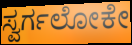
ಸ್ವರ್ಗಲೋಕೇ